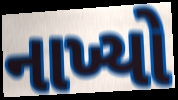
નાખ્યો